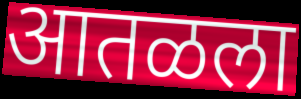
आतळला